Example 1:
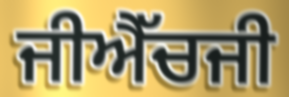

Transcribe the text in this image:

ਜੀਐੱਚਜੀ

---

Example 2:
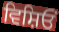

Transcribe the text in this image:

ਵਿਸ਼ਿਓਂ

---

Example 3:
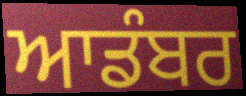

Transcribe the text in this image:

ਆਡੰਬਰ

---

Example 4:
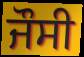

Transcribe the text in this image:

ਜੌਸੀ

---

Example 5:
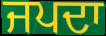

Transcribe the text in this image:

ਜਪਦਾ